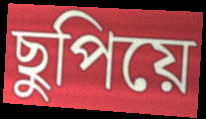
ছুপিয়ে